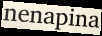
nenapina